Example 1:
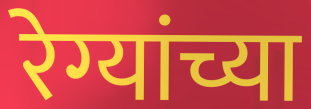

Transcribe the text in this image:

रेग्यांच्या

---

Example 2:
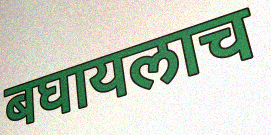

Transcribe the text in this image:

बघायलाच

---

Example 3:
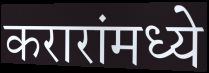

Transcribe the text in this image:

करारांमध्ये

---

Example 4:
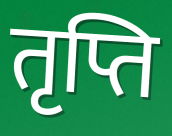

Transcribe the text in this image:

तृप्ति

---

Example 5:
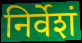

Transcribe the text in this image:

निर्वेशं